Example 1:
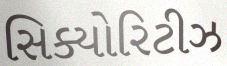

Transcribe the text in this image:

સિક્યોરિટીઝ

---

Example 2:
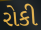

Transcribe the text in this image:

રોકી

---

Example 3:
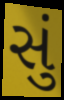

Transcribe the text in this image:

સું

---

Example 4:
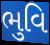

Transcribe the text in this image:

ભુવિ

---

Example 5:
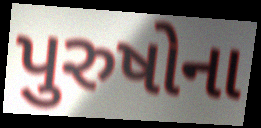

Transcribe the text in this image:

પુરુષોના